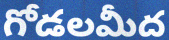
గోడలమీద